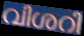
വിശറി